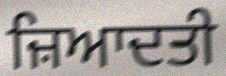
ਜ਼ਿਆਦਤੀ